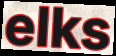
elks